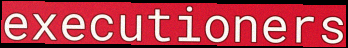
executioners